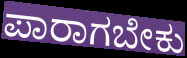
ಪಾರಾಗಬೇಕು